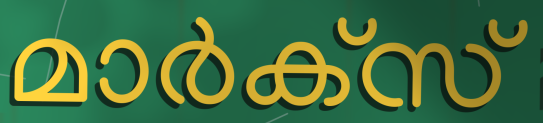
മാർക്‌സ്